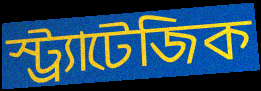
স্ট্র্যাটেজিক